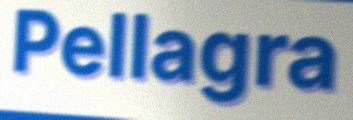
Pellagra